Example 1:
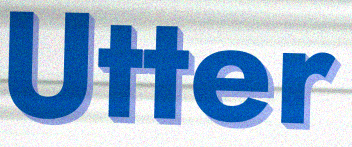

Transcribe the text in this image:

Utter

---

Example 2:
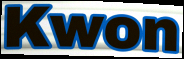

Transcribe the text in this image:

Kwon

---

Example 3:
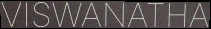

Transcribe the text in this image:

VISWANATHA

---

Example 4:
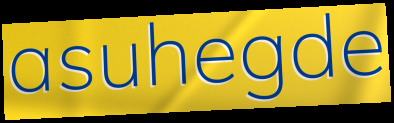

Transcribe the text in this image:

asuhegde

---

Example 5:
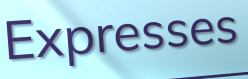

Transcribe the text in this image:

Expresses